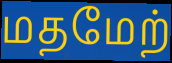
மதமேற்